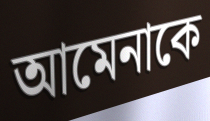
আমেনাকে